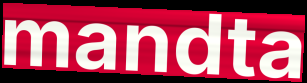
mandta